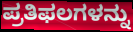
ಪ್ರತಿಫಲಗಳನ್ನು